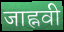
जाह्नवी